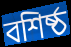
বশিষ্ঠ